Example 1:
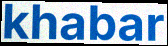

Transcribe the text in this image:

khabar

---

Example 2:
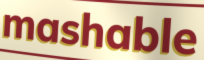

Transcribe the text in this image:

mashable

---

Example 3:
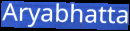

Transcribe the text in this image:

Aryabhatta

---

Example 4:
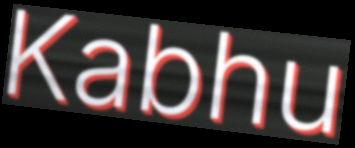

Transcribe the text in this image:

Kabhu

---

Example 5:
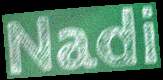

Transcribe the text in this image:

Nadi